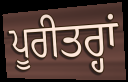
ਪੂਰੀਤਰ੍ਹਾਂ